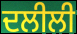
ਦਲੀਲੀ